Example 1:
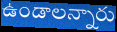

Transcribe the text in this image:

ఉండాలన్నారు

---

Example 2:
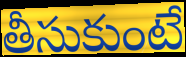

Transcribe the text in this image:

తీసుకుంటే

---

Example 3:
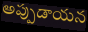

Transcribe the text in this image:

అప్పుడాయన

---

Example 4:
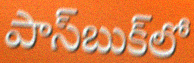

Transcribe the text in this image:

పాస్‌బుక్‌లో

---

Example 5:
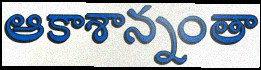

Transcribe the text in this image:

ఆకాశాన్నంతా